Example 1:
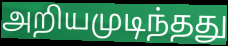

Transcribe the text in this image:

அறியமுடிந்தது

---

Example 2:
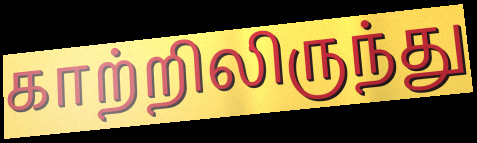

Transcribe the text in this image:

காற்றிலிருந்து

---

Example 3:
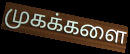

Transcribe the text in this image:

முகக்களை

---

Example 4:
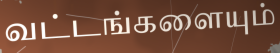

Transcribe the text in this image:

வட்டங்களையும்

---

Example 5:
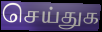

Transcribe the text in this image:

செய்துக